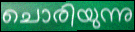
ചൊരിയുന്നു